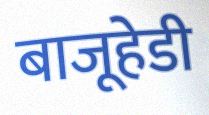
बाजूहेडी